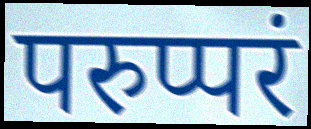
परुप्परं